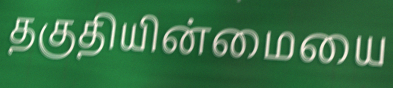
தகுதியின்மையை